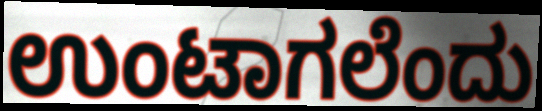
ಉಂಟಾಗಲೆಂದು